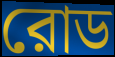
রোড